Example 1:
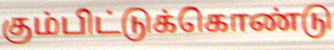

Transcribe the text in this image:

கும்பிட்டுக்கொண்டு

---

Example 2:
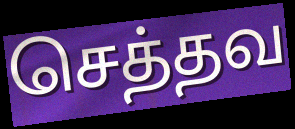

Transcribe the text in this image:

செத்தவ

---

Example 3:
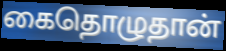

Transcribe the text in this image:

கைதொழுதான்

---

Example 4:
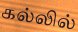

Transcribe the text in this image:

கல்லில்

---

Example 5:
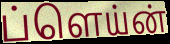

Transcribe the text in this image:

ப்ளெய்ன்